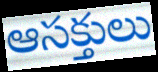
ఆసక్తులు